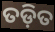
ତଡ଼ିତ